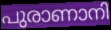
പുരാണാനി